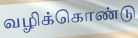
வழிக்கொண்டு